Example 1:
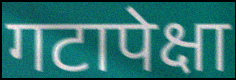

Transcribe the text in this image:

गटापेक्षा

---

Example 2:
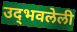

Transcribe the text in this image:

उद्‌भवलेली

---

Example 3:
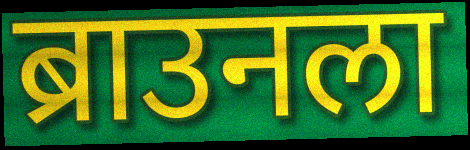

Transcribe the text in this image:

ब्राउनला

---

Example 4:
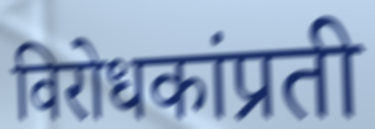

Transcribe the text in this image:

विरोधकांप्रती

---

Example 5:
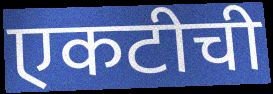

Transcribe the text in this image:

एकटीची